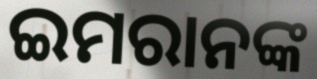
ଇମରାନଙ୍କ